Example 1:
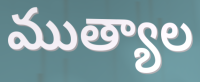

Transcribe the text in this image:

ముత్యాల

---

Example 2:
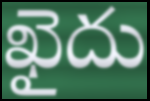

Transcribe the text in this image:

ఖైదు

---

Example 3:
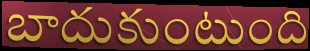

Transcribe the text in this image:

బాదుకుంటుంది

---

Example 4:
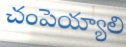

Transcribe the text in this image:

చంపెయ్యాలి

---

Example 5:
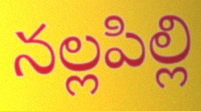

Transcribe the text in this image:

నల్లపిల్లి